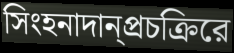
সিংহনাদান্প্রচক্রিরে